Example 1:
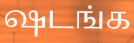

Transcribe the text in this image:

ஷடங்க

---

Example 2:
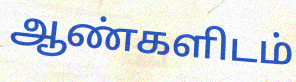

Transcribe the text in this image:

ஆண்களிடம்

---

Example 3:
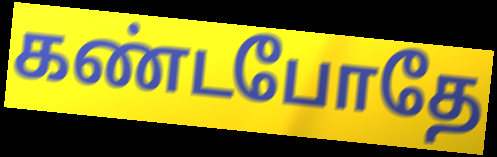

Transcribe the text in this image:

கண்டபோதே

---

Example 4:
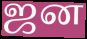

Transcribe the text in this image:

ஜன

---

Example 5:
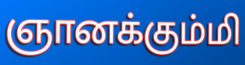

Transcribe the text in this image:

ஞானக்கும்மி